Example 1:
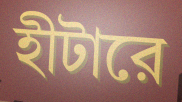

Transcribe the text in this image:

হীটারে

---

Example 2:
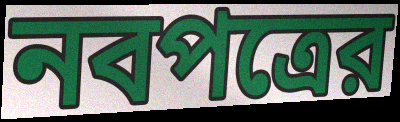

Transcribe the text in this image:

নবপত্রের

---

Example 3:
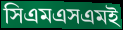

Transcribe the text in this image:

সিএমএসএমই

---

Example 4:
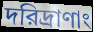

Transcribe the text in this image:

দরিদ্রাণাং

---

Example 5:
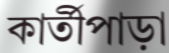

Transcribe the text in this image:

কার্তীপাড়া